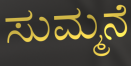
ಸುಮ್ಮನೆ